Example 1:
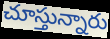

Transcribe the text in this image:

చూస్తున్నారు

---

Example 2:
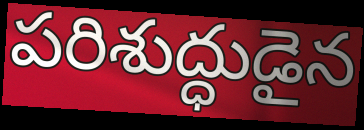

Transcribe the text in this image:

పరిశుద్ధుడైన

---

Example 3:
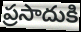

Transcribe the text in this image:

ప్రసాదుకి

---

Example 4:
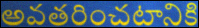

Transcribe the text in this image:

అవతరించటానికి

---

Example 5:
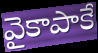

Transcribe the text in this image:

వైకాపాకే